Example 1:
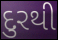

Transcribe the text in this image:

દુરથી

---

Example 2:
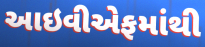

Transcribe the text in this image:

આઇવીએફમાંથી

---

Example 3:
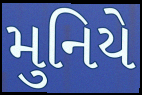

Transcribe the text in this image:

મુનિયે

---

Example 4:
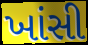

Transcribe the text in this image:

ખાંસી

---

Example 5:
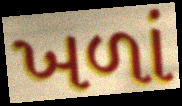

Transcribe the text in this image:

ખળાં